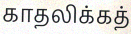
காதலிக்கத்